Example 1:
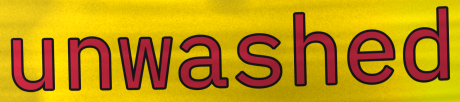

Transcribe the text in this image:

unwashed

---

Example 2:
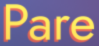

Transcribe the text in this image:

Pare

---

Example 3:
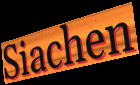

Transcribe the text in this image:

Siachen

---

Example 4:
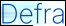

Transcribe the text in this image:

Defra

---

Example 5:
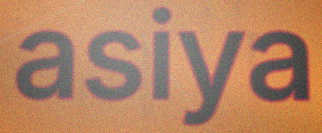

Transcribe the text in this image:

asiya